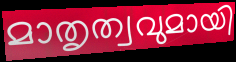
മാതൃത്വവുമായി